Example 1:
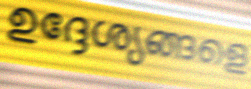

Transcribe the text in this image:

ഉദ്ദേശ്യങ്ങളെ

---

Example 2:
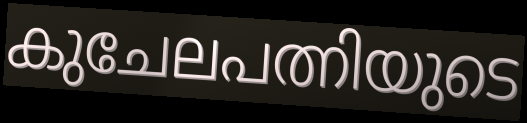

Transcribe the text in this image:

കുചേലപത്നിയുടെ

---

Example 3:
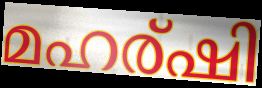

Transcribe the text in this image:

മഹര്ഷി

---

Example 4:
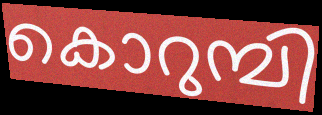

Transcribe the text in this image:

കൊറുമ്പി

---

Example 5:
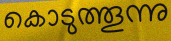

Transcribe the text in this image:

കൊടുത്തൂന്നു